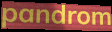
pandrom